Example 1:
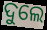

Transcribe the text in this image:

ଦୁଲେ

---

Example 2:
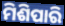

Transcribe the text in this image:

ମିଶିପାରି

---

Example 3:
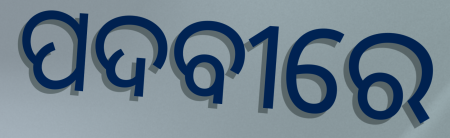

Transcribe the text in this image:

ପଦବୀରେ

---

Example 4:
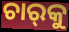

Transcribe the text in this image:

ଚାର୍‌କୁ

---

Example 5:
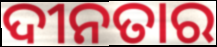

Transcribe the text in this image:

ଦୀନତାର